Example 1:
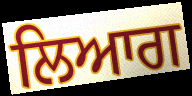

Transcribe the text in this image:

ਲਿਆਗ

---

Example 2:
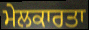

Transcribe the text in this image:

ਮੇਲਕਾਰਤਾ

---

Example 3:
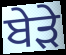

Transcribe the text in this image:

ਬੇੜੇ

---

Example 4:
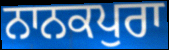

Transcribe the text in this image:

ਨਾਨਕਪੁਰਾ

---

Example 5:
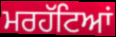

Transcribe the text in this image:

ਮਰਹੱਟਿਆਂ